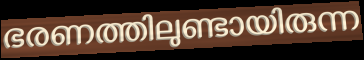
ഭരണത്തിലുണ്ടായിരുന്ന